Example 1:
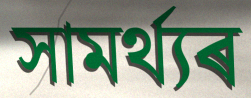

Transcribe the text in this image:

সামৰ্থ্যৰ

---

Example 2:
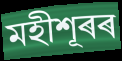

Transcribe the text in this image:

মহীশূৰৰ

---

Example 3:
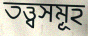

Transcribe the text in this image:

তত্ত্বসমূহ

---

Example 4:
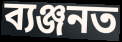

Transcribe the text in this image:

ব্যঞ্জনত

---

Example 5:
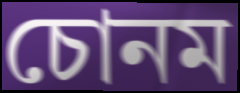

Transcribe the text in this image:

চোনম